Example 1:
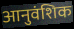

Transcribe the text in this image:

आनुवंशिक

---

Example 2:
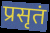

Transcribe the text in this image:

प्रसृतं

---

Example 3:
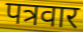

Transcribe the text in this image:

पत्रवार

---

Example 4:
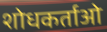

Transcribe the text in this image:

शोधकर्ताओ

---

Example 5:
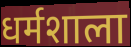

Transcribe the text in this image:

धर्मशाला